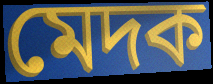
মেদক